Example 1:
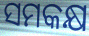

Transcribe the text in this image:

ସମକକ୍ଷ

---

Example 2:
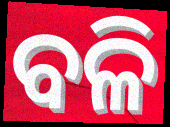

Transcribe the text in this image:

ବଳି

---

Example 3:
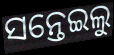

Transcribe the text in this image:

ସନ୍ତେଇଲୁ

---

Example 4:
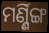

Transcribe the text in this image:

ମର୍ଣ୍ଣିଙ୍ଗ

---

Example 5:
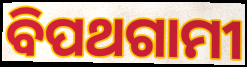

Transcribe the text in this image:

ବିପଥଗାମୀ